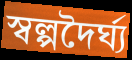
স্বল্পদৈর্ঘ্য